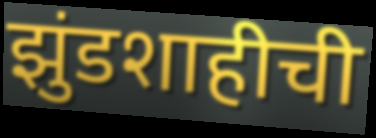
झुंडशाहीची